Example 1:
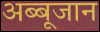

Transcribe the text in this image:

अब्बूजान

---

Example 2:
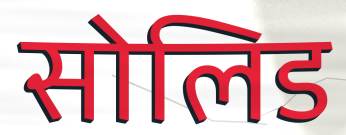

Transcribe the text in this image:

सोलिड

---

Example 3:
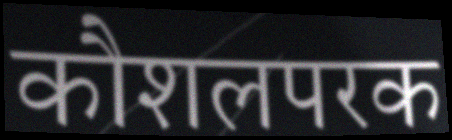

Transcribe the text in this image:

कौशलपरक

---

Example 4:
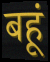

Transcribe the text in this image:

बहूं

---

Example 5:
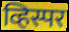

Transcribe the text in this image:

व्हिस्पर